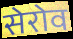
सेरोव